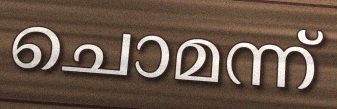
ചൊമന്ന്